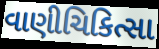
વાણીચિકિત્સા